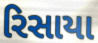
રિસાયા